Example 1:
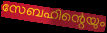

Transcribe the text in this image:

സേബഹിന്റെയും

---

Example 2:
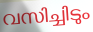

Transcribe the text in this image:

വസിച്ചിടും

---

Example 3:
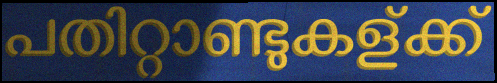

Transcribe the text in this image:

പതിറ്റാണ്ടുകള്ക്ക്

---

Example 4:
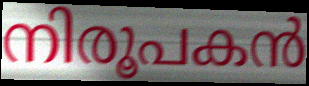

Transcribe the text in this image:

നിരൂപകൻ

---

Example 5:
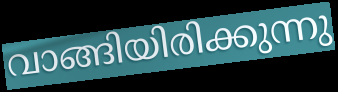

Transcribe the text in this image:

വാങ്ങിയിരിക്കുന്നു